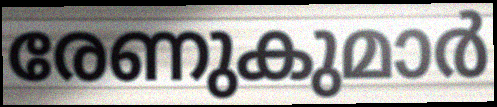
രേണുകുമാർ